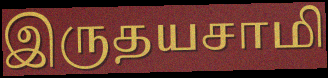
இருதயசாமி